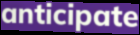
anticipate